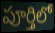
పూర్తిలో